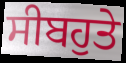
ਸੀਬਹੁਤੇ